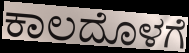
ಕಾಲದೊಳಗೆ